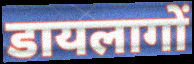
डायलागों